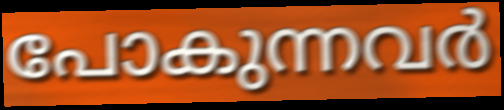
പോകുന്നവർ